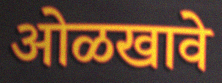
ओळखावे